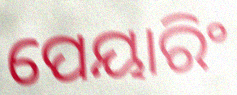
ପେୟାରିଂ